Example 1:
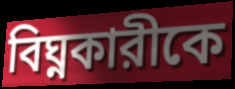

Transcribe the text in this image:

বিঘ্নকারীকে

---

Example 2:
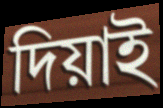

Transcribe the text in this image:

দিয়াই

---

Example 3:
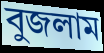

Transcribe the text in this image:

বুজলাম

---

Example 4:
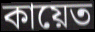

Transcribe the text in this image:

কায়েত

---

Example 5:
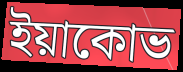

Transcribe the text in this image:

ইয়াকোভ